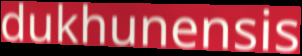
dukhunensis